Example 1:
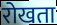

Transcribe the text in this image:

रोखता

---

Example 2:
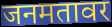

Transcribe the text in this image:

जनमतावर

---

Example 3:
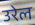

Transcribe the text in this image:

उरेल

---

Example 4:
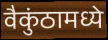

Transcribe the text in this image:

वैकुंठामध्ये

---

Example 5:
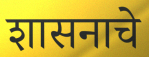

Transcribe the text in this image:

शासनाचे